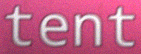
tent